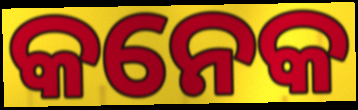
କନେକ